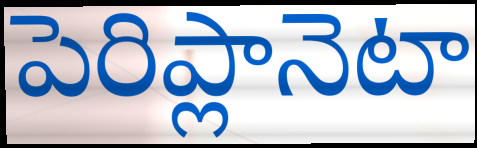
పెరిప్లానెటా